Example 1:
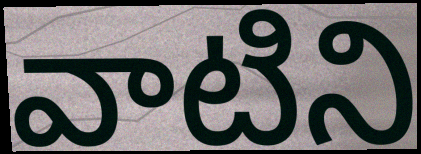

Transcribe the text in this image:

వాటిని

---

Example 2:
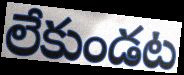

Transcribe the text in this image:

లేకుండట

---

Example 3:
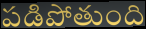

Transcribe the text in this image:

పడిపోతుంది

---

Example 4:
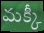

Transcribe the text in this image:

మక్కీ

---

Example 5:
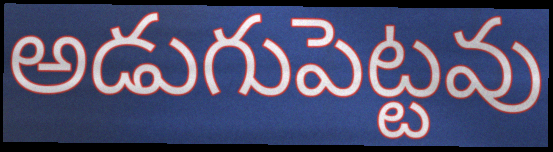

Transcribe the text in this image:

అడుగుపెట్టవు